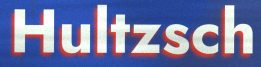
Hultzsch